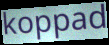
koppad